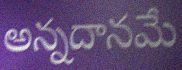
అన్నదానమే